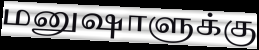
மனுஷாளுக்கு